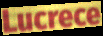
Lucrece